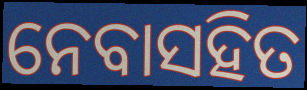
ନେବାସହିତ